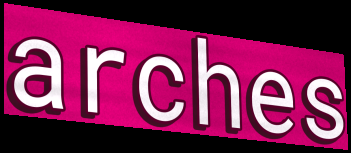
arches